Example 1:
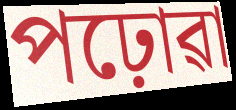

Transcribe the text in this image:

পঢ়োৱা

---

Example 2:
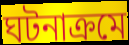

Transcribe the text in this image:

ঘটনাক্ৰমে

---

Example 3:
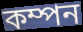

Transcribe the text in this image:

কম্পন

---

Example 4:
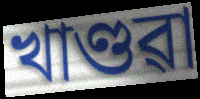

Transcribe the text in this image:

খাণ্ডৱা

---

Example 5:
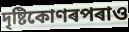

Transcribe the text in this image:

দৃষ্টিকোণৰপৰাও